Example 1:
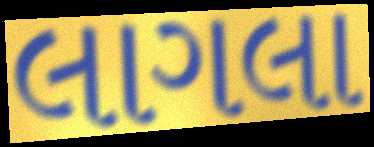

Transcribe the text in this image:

લાગલા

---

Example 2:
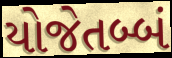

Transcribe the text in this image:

યોજેતબ્બં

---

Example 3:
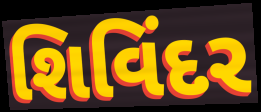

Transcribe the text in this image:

શિવિંદર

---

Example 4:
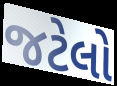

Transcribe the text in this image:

જટેલો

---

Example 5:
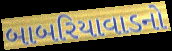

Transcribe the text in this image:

બાબરિયાવાડનો